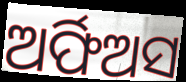
ଅର୍ଫିଅସ